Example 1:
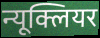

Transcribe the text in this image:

न्यूक्लियर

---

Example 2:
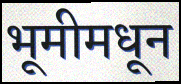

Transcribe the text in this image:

भूमीमधून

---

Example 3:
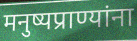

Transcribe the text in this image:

मनुष्यप्राण्यांना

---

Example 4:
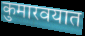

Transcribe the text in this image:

कुमारवयात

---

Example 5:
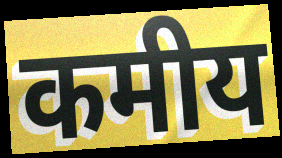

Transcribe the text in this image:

कमीय